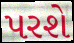
પરશે